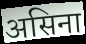
असिना